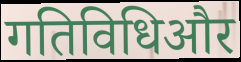
गतिविधिऔर